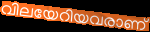
വിലയേറിയവരാണ്